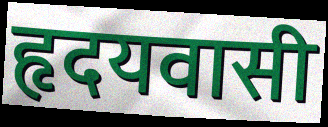
हृदयवासी